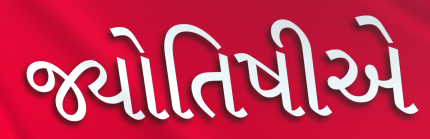
જ્યોતિષીએ